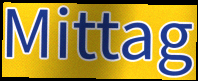
Mittag